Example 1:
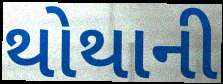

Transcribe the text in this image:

થોથાની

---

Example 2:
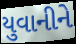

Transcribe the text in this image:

યુવાનીને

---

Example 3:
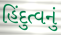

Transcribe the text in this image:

હિંદુત્વનું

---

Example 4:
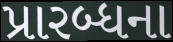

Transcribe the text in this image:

પ્રારબ્ધના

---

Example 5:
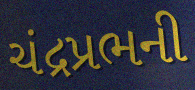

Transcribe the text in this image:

ચંદ્રપ્રભની